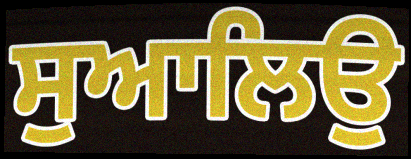
ਸੁਆਲਿਉ